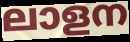
ലാളന